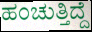
ಹಂಚುತ್ತಿದ್ದೆ